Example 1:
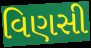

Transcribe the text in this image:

વિણસી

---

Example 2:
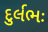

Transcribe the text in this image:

દુર્લભઃ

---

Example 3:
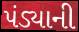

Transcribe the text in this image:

પંડ્યાની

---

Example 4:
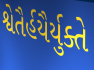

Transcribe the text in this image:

શ્વેતૈર્હયૈર્યુક્તે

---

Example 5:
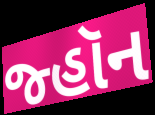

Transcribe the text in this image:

જ્હૉન